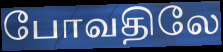
போவதிலே